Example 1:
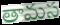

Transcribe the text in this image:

తామస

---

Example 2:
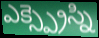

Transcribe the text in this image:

ఎక్స్ప్రెస్ని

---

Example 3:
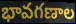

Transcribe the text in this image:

భావగణాల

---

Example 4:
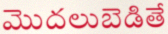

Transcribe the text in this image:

మొదలుబెడితే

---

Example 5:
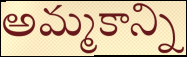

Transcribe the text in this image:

అమ్మకాన్ని